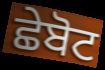
ਛੇਬੋਟ